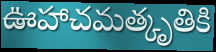
ఊహాచమత్కృతికి